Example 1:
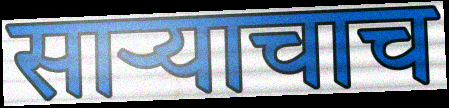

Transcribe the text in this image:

साऱ्याचाच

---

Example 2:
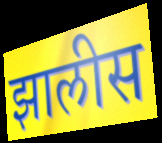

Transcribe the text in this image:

झालीस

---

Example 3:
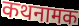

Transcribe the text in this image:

कथनामक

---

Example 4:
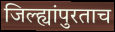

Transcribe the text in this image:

जिल्ह्यांपुरताच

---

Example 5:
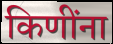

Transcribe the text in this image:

किणींना